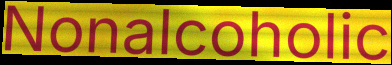
Nonalcoholic